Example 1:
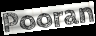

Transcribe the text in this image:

Pooran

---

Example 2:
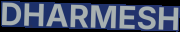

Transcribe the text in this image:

DHARMESH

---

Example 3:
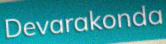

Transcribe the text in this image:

Devarakonda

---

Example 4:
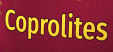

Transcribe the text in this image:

Coprolites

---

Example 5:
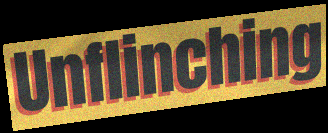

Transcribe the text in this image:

Unflinching